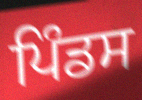
ਪਿੰਡਸ